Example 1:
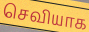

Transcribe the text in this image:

செவியாக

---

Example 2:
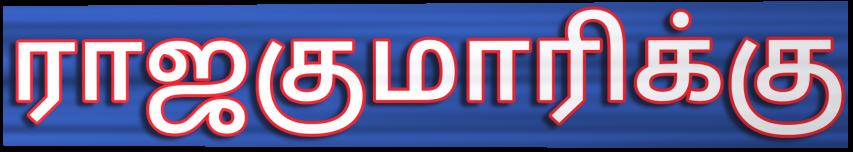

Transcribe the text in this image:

ராஜகுமாரிக்கு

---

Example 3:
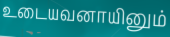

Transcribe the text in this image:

உடையவனாயினும்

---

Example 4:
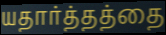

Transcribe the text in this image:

யதார்த்தத்தை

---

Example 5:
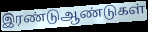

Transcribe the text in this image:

இரண்டுஆண்டுகள்